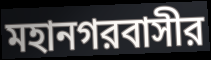
মহানগরবাসীর